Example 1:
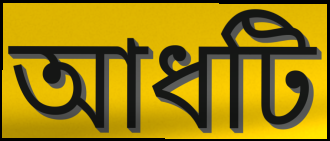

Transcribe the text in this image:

আধটি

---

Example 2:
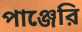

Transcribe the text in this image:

পাঞ্জেরি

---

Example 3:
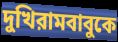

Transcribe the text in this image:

দুখিরামবাবুকে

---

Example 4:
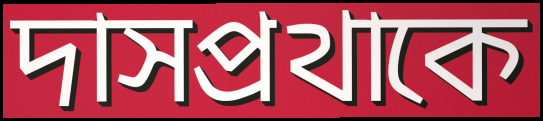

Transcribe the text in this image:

দাসপ্রথাকে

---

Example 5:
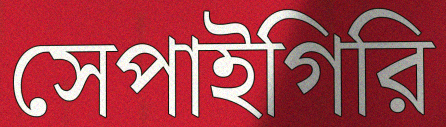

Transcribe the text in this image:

সেপাইগিরি